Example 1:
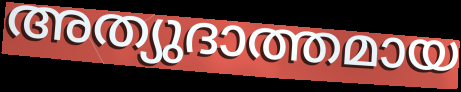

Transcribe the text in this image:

അത്യുദാത്തമായ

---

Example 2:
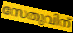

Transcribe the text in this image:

സേതുവിന്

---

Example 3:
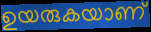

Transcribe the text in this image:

ഉയരുകയാണ്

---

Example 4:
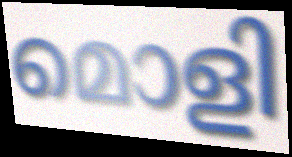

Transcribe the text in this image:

മൊളി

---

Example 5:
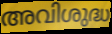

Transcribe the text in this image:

അവിശുദ്ധ